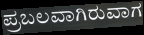
ಪ್ರಬಲವಾಗಿರುವಾಗ